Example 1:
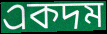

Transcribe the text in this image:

একদম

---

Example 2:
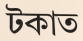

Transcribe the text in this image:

টকাত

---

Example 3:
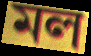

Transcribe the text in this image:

মল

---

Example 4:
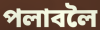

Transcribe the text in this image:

পলাবলৈ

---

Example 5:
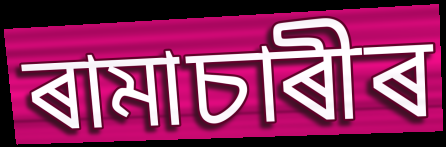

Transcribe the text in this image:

ৰামাচাৰীৰ